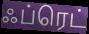
ஃப்ரெட்